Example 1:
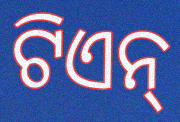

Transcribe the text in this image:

ଟିଏନ୍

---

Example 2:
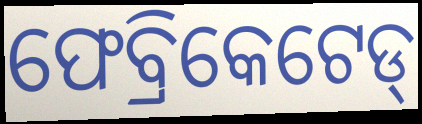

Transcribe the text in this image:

ଫେବ୍ରିକେଟେଡ୍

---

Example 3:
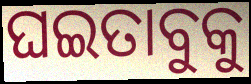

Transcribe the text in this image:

ଘଇତାବୁକୁ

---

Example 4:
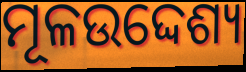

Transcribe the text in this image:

ମୂଳଉଦ୍ଦେଶ୍ୟ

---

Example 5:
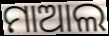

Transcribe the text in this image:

ମାଆଲ